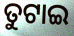
ତୁଟାଇ